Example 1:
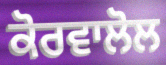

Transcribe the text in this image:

ਕੋਰਵਾਲੋਲ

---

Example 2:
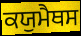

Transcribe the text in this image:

ਕਯੁਮੈਥਸ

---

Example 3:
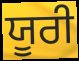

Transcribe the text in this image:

ਯੂਰੀ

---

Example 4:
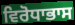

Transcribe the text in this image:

ਵਿਰੋਧਾਭਾਸ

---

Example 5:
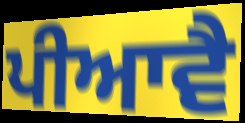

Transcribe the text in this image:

ਪੀਆਵੈ